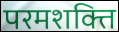
परमशक्ति